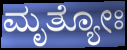
ಮೃತ್ಯೋಃ